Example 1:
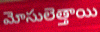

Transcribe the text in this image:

మోసులెత్తాయి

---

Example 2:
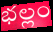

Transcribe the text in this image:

భల్లం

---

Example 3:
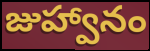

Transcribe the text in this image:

జుహ్వానం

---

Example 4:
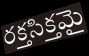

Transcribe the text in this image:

రక్తసిక్తమై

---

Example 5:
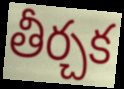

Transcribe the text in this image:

తీర్చక